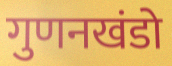
गुणनखंडो